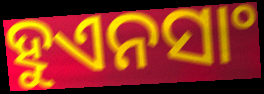
ହୁଏନସାଂ